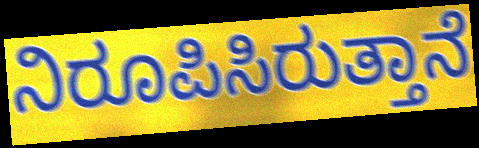
ನಿರೂಪಿಸಿರುತ್ತಾನೆ